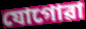
যোগোৱা